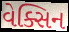
વેક્સિન